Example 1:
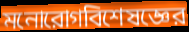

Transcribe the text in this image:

মনোরোগবিশেষজ্ঞের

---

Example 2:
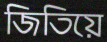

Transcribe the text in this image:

জিতিয়ে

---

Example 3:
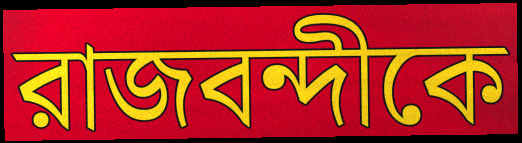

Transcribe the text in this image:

রাজবন্দীকে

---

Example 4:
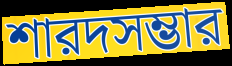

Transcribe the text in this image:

শারদসম্ভার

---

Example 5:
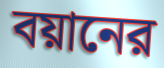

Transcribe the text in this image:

বয়ানের